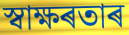
স্বাক্ষৰতাৰ